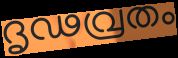
ദൃഢവ്രതം